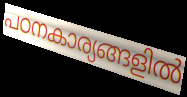
പഠനകാര്യങ്ങളിൽ